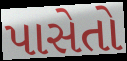
પાસેતો